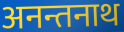
अनन्तनाथ